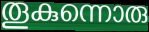
തൂകുന്നൊരു